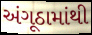
અંગૂઠામાંથી